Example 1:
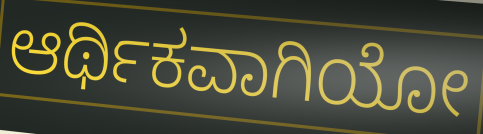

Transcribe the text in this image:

ಆರ್ಥಿಕವಾಗಿಯೋ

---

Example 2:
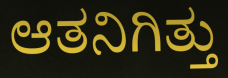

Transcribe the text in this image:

ಆತನಿಗಿತ್ತು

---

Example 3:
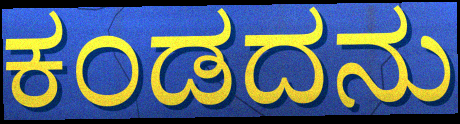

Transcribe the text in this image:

ಕಂಡದನು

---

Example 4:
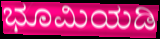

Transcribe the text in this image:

ಭೂಮಿಯಡಿ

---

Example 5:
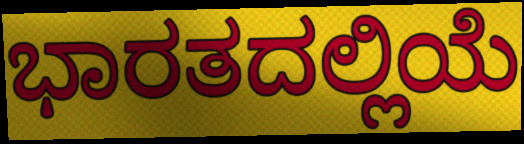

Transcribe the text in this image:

ಭಾರತದಲ್ಲಿಯೆ